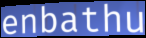
enbathu